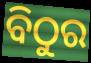
ବିଠୁର